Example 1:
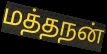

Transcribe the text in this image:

மத்தநன்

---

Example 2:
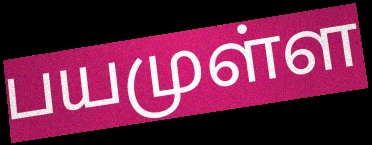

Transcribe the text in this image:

பயமுள்ள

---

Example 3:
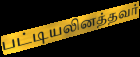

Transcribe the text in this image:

பட்டியலினத்தவர்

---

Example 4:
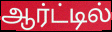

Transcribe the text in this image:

ஆர்ட்டில்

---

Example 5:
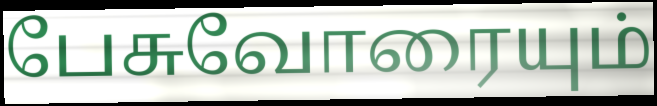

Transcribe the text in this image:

பேசுவோரையும்